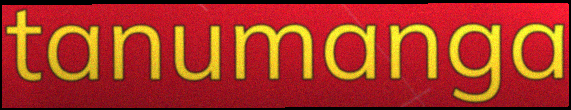
tanumanga